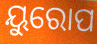
ୟୁରୋପ